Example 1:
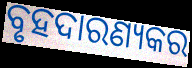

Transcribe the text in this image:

ବୃହଦାରଣ୍ୟକର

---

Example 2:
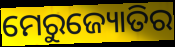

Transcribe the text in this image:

ମେରୁଜ୍ୟୋତିର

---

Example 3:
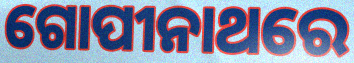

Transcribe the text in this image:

ଗୋପୀନାଥରେ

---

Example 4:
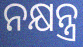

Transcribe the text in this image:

ନକ୍ଷନ୍ତ୍ର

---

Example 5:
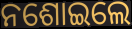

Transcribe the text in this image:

ନଶୋଇଲେ